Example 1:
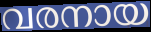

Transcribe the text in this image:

വരനായ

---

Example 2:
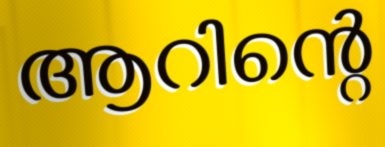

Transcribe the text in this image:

ആറിന്റെ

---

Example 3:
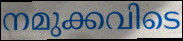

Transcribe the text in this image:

നമുക്കവിടെ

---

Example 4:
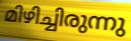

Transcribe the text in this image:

മിഴിച്ചിരുന്നു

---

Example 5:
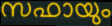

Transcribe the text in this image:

സഫായും